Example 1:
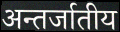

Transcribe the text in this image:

अन्तर्जातीय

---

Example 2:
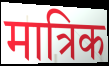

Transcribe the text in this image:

मात्रिक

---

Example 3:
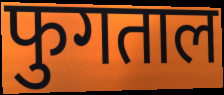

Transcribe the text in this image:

फुगताल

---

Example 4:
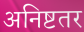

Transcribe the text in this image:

अनिष्टतर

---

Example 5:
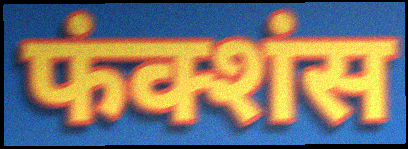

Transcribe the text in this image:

फंक्शंस